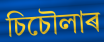
চিচৌলাৰ